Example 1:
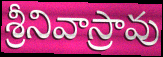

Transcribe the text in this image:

శ్రీనివాస్రావు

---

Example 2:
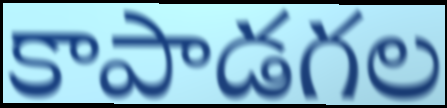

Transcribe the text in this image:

కాపాడగల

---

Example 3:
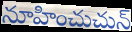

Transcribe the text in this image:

నూహించుచున్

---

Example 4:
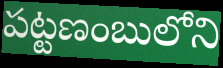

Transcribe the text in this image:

పట్టణంబులోని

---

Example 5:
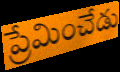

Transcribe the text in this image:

ప్రేమించేడు